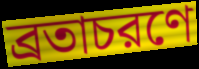
ব্রতাচরণে